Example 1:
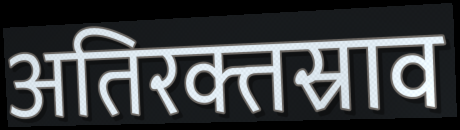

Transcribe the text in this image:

अतिरक्तस्राव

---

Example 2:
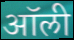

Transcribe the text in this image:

ऑली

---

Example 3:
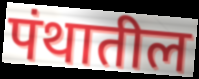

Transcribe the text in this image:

पंथातील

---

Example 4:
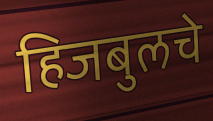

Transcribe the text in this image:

हिजबुलचे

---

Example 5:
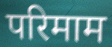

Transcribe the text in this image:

परिमाम